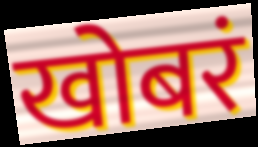
खोबरं